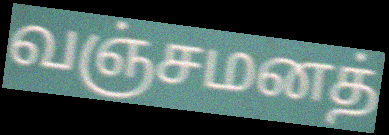
வஞ்சமனத்